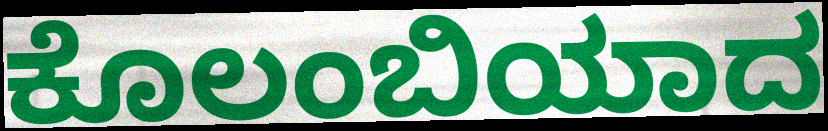
ಕೊಲಂಬಿಯಾದ